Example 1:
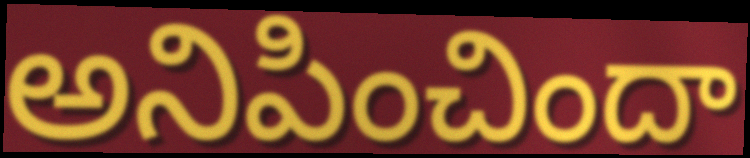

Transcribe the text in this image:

అనిపించిందా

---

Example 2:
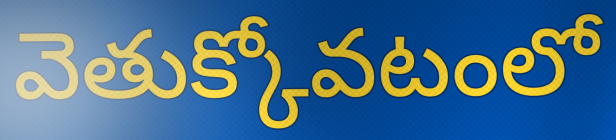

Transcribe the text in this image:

వెతుక్కోవటంలో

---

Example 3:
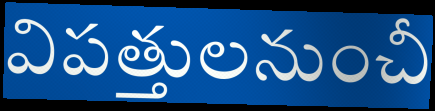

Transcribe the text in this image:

విపత్తులనుంచీ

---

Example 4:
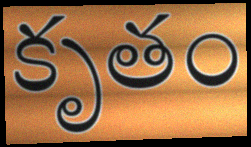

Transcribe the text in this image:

కృతం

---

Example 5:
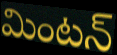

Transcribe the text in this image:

మింటన్